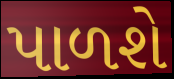
પાળશે